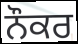
ਨੌਕਰ